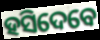
ହସିଦେବେ